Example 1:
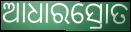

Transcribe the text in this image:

ଆଧାରସ୍ରୋତ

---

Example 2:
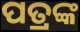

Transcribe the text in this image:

ପତ୍ରଙ୍କ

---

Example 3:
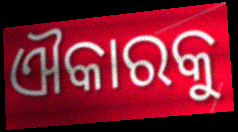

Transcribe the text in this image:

ଐକାରକୁ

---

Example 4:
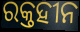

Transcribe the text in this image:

ରକ୍ତହୀନ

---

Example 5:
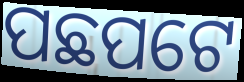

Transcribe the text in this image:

ପଛପଟେ